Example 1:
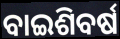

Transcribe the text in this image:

ବାଇଶିବର୍ଷ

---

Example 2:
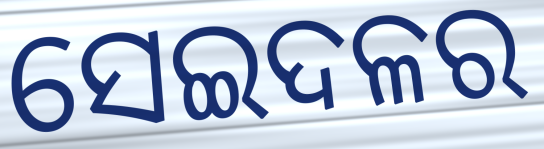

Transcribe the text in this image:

ସେଇଦଳର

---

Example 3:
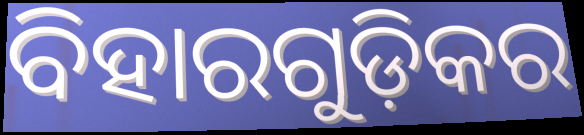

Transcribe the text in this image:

ବିହାରଗୁଡ଼ିକର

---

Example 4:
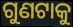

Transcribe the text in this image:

ଗୁଣଟାକୁ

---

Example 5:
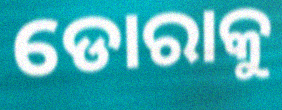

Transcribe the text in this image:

ଡୋରାକୁ